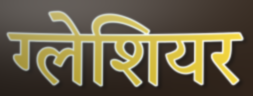
ग्‍लेशियर